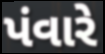
પંવારે